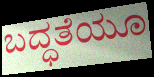
ಬದ್ಧತೆಯೂ